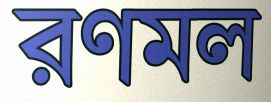
রণমল